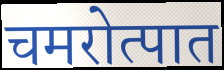
चमरोत्पात